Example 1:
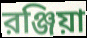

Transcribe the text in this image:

রঞ্জিয়া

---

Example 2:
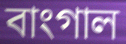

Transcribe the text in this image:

বাংগাল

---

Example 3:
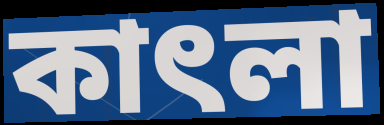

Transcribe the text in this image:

কাৎলা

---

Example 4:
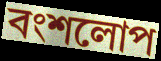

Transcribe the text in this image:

বংশলোপ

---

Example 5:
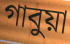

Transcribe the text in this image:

গাবুয়া